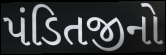
પંડિતજીનો